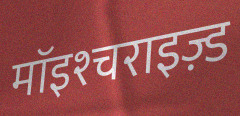
मॉइश्चराइज़्ड